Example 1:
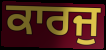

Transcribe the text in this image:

ਕਾਰਜੁ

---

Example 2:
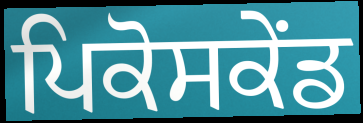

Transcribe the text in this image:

ਪਿਕੋਸਕੇਂਡ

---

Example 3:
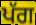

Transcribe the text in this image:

ਪੱਗ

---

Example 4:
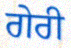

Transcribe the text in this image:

ਗੇਰੀ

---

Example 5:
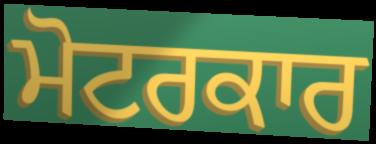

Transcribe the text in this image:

ਮੋਟਰਕਾਰ